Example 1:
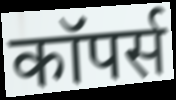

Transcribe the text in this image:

कॉपर्स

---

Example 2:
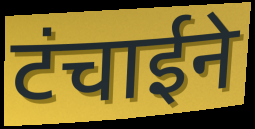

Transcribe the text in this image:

टंचाईने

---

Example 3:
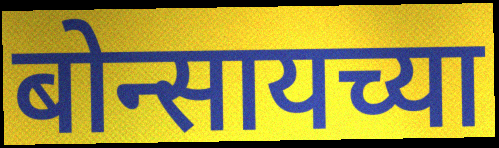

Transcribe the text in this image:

बोन्सायच्या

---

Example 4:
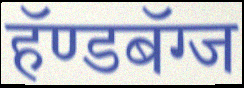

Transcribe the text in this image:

हॅण्डबॅग्ज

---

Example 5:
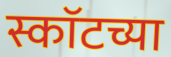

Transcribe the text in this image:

स्कॉटच्या